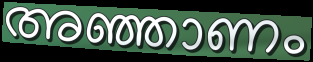
അഞ്ഞാണം